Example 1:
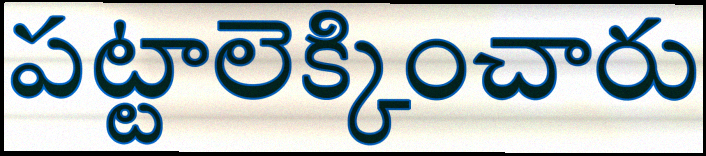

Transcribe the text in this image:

పట్టాలెక్కించారు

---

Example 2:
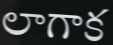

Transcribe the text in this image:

లాగాక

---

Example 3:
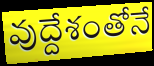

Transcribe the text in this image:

వుద్దేశంతోనే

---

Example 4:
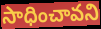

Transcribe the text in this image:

సాధించావని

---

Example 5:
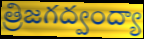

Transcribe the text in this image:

త్రిజగద్వంద్యా